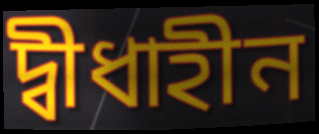
দ্বীধাহীন